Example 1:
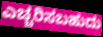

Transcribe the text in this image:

ಎಚ್ಚರಿಸಬಹುದು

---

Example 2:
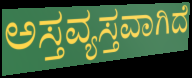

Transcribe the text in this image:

ಅಸ್ತವ್ಯಸ್ತವಾಗಿದೆ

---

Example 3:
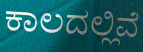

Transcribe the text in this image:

ಕಾಲದಲ್ಲಿವೆ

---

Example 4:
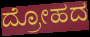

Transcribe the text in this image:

ದ್ರೋಹದ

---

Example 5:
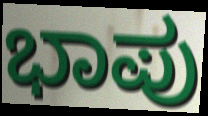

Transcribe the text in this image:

ಭಾಪು